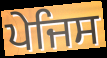
ਪੇਜਿਸ